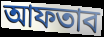
আফতাব